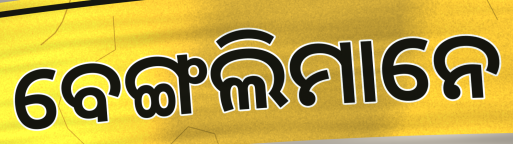
ବେଙ୍ଗଲିମାନେ